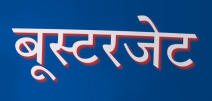
बूस्टरजेट